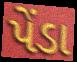
પેંડા